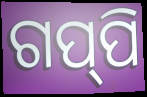
ଗପ୍‌ପି